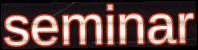
seminar